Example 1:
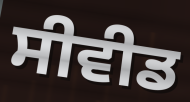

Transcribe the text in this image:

ਸੀਵੀਡ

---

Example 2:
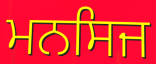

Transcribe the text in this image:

ਮਨਸਿਜ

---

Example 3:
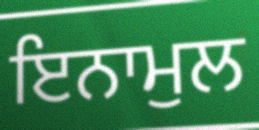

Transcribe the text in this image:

ਇਨਾਮੁਲ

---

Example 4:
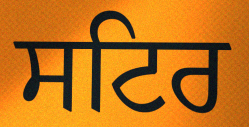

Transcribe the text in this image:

ਸਟਿਰ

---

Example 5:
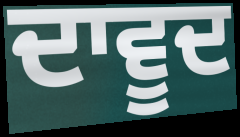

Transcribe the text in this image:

ਦਾਵੂਦ